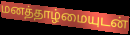
மனத்தாழ்மையுடன்